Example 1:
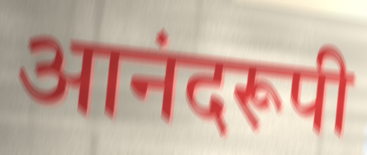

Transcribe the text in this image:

आनंदरूपी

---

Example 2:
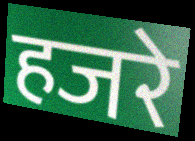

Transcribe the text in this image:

हजरे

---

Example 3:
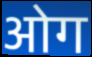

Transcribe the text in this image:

ओग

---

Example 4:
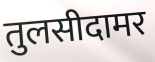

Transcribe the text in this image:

तुलसीदामर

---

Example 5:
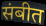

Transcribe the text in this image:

संबीत